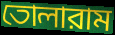
তোলারাম